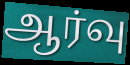
ஆர்வு